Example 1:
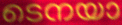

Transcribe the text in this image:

ടെനയാ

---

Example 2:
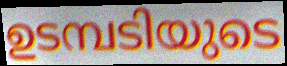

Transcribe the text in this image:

ഉടമ്പടിയുടെ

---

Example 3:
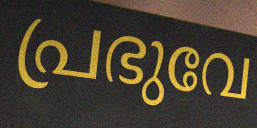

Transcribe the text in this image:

പ്രഭുവേ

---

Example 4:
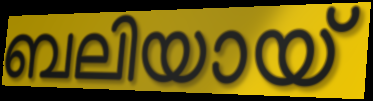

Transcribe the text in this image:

ബലിയായ്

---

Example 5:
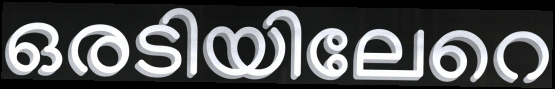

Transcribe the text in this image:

ഒരടിയിലേറെ